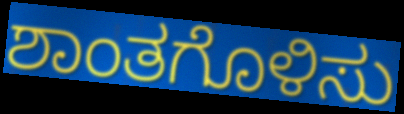
ಶಾಂತಗೊಳಿಸು